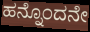
ಹನ್ನೊಂದನೇ